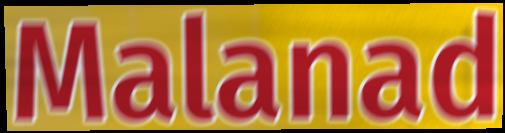
Malanad